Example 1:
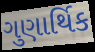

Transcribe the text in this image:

ગુણાર્થિક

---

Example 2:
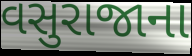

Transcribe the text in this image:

વસુરાજાના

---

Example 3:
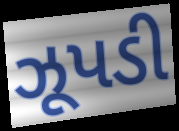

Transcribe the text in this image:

ઝૂપડી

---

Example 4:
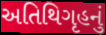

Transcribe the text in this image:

અતિથિગૃહનું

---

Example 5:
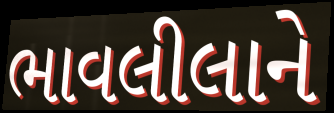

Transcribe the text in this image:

ભાવલીલાને